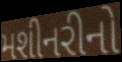
મશીનરીનો